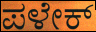
ಪಳೇಕ್